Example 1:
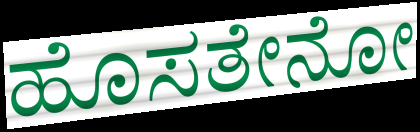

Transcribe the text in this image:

ಹೊಸತೇನೋ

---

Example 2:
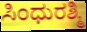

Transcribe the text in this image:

ಸಿಂಧುರಶ್ಮಿ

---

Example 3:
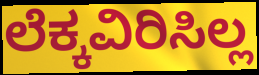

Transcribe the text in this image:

ಲೆಕ್ಕವಿರಿಸಿಲ್ಲ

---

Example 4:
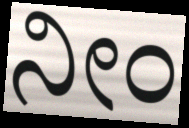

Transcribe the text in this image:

ನೀಂ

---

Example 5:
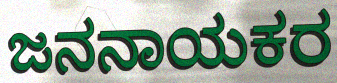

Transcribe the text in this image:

ಜನನಾಯಕರ